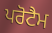
ਪਰੋਟੈਮ